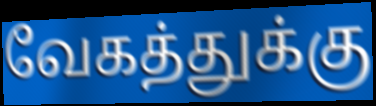
வேகத்துக்கு